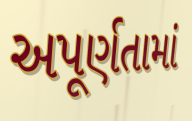
અપૂર્ણતામાં